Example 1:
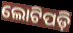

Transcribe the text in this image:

ଲୋଟିପଡ଼ି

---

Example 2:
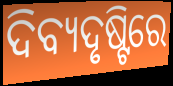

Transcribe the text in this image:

ଦିବ୍ୟଦୃଷ୍ଟିରେ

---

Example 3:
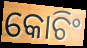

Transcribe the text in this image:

କୋଚିଂ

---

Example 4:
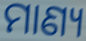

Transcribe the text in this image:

ମାଣ୍ୟ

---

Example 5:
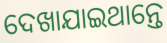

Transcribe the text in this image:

ଦେଖାଯାଇଥାନ୍ତେ